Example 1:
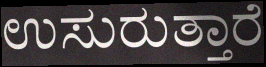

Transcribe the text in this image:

ಉಸುರುತ್ತಾರೆ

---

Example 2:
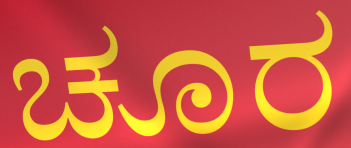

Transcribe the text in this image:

ಚೂರ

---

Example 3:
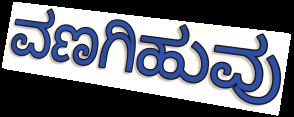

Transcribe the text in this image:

ವಣಗಿಹುವು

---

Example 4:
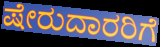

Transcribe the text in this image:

ಷೇರುದಾರರಿಗೆ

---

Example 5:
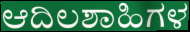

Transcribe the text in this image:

ಆದಿಲಶಾಹಿಗಳ